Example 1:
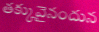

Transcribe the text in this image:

తక్కువైనందున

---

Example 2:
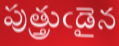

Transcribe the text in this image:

పుత్త్రుఁడైన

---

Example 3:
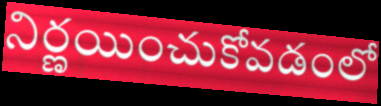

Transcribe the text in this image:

నిర్ణయించుకోవడంలో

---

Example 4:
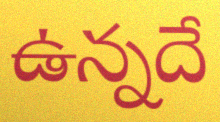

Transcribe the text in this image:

ఉన్నదే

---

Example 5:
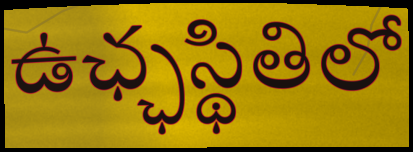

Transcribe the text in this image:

ఉఛ్ఛస్థితిలో